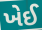
ખેઈ